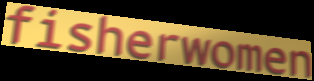
fisherwomen